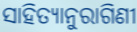
ସାହିତ୍ୟାନୁରାଗିଣୀ